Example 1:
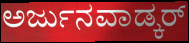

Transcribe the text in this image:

ಅರ್ಜುನವಾಡ್ಕರ್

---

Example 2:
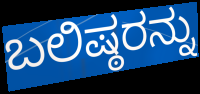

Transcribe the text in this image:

ಬಲಿಷ್ಠರನ್ನು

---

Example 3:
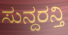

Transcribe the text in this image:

ಸುನ್ದರನ್ತಿ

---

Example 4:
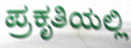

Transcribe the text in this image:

ಪ್ರಕೃತಿಯಲ್ಲಿ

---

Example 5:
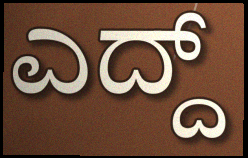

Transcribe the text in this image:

ಎದ್ದ್